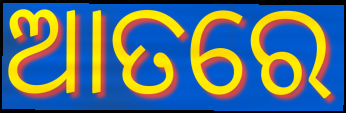
ଆତରେ